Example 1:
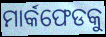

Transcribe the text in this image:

ମାର୍କଫେଡକୁ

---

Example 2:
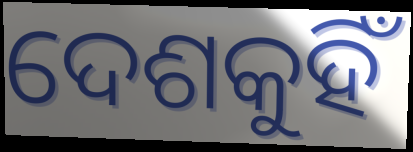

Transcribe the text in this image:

ଦେଶକୁହିଁ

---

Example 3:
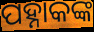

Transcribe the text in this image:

ପହ୍ନାକଙ୍କ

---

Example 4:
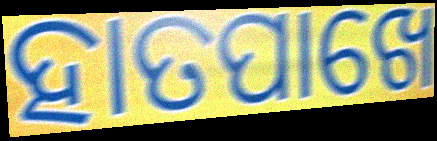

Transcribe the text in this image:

ହାତପାଖେ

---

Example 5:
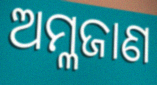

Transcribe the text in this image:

ଅମ୍ଳଜାଣ